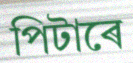
পিটাৰে